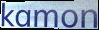
kamon